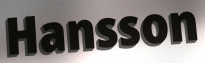
Hansson